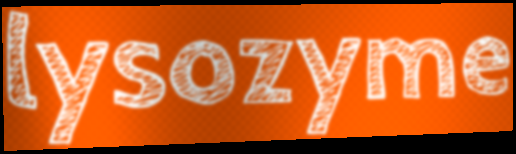
lysozyme